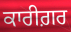
ਕਾਰੀਗ਼ਰ